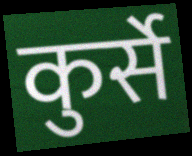
कुर्से